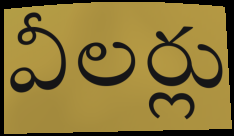
వీలర్లు